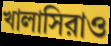
খালাসিরাও